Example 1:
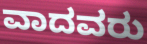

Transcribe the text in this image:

ವಾದವರು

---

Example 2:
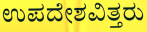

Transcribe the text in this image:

ಉಪದೇಶವಿತ್ತರು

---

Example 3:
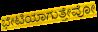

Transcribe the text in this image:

ಭೇಟಿಯಾಗುತ್ತೇವೋ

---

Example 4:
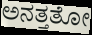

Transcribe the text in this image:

ಅನತ್ತತೋ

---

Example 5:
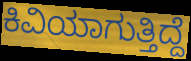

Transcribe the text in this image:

ಕಿವಿಯಾಗುತ್ತಿದ್ದೆ